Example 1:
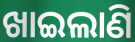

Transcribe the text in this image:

ଖାଇଲାଣି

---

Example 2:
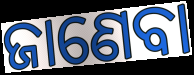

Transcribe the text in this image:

ଜାଣେବା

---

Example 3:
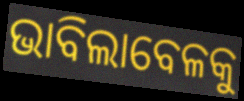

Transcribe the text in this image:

ଭାବିଲାବେଳକୁ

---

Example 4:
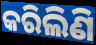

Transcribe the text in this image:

କରିଲିଣି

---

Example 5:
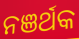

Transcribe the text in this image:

ନଞର୍ଥକ